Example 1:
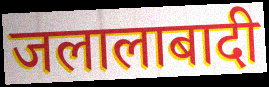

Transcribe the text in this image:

जलालाबादी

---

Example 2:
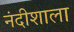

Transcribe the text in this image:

नंदीशाला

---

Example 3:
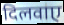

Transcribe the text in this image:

दिलवाए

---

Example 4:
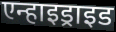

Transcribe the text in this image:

एन्हाइड्राइड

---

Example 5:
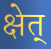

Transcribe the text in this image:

क्षेत्